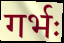
गर्भः